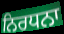
ਨਿਰਧਨਾ